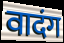
वादंग